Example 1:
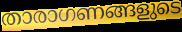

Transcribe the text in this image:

താരാഗണങ്ങളുടെ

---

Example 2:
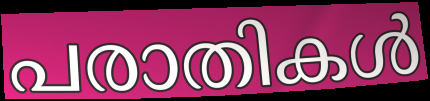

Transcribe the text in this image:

പരാതികൾ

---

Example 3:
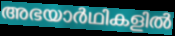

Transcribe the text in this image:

അഭയാർഥികളിൽ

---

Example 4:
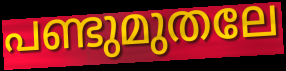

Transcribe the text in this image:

പണ്ടുമുതലേ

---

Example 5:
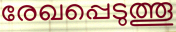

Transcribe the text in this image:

രേഖപ്പെടുത്തൂ